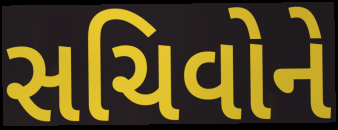
સચિવોને